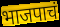
भाजपाचं